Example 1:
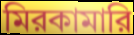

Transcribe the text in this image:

মিরকামারি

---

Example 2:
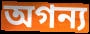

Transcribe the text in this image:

অগন্য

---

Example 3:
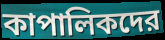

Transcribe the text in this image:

কাপালিকদের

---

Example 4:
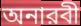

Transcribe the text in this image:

অনারবী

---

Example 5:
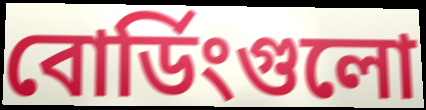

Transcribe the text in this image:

বোর্ডিংগুলো